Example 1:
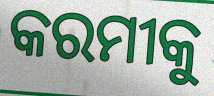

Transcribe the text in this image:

କରମୀକୁ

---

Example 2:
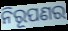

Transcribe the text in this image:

ନିରୂପଣର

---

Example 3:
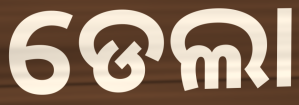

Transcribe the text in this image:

ଡେଲା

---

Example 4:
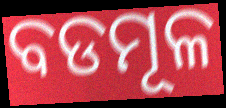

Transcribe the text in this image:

ବଡମୂଳ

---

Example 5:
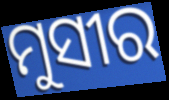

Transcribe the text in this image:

ମୁସୀର